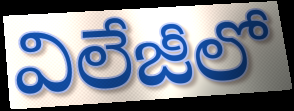
విలేజీలో